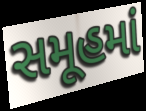
સમૂહમાં